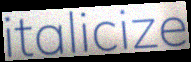
italicize